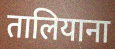
तालियाना